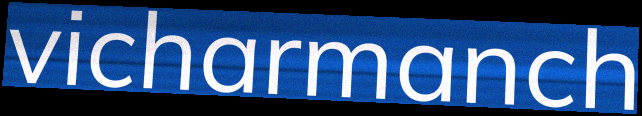
vicharmanch